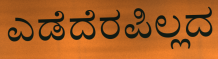
ಎಡೆದೆರಪಿಲ್ಲದ